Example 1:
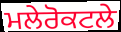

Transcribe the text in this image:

ਮਲੇਰੋਕਟਲੇ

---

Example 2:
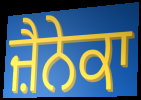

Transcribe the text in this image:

ਜ਼ੈਨੇਕਾ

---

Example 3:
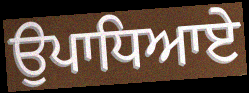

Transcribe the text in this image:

ਉਪਾਧਿਆਏ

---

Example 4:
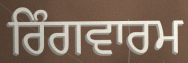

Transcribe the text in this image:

ਰਿੰਗਵਾਰਮ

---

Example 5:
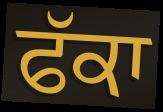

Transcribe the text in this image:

ਫੱਕਾ